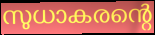
സുധാകരന്റെ